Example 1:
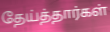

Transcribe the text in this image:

தேய்த்தார்கள்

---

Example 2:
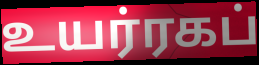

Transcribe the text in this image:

உயர்ரகப்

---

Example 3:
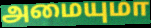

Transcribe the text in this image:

அமையுமா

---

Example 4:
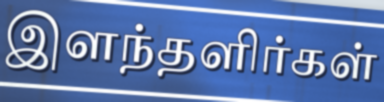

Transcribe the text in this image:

இளந்தளிர்கள்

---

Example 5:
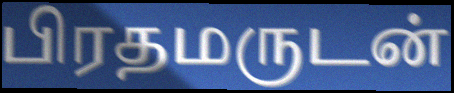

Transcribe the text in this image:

பிரதமருடன்